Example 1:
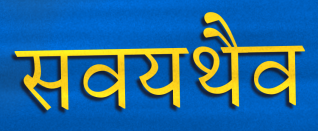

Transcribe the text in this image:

सवयथैव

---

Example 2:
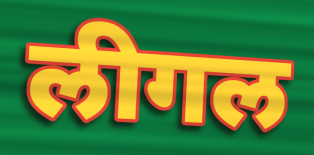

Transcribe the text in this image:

लीगल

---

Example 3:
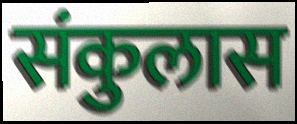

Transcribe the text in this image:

संकुलास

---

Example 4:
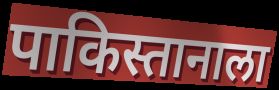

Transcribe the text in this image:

पाकिस्तानाला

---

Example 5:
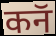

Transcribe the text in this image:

कनॅ